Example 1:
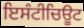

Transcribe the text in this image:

ਇਸੰਟੀਚਿਊਟ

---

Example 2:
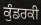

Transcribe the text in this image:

ਕੁੰਡਰਕੀ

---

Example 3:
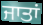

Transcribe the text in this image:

ਜਾਤਾਂ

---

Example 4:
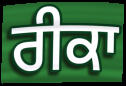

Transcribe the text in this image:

ਰੀਕਾ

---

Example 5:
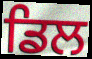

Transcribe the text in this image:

ਡਿਲ